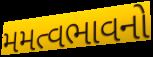
મમત્વભાવનો